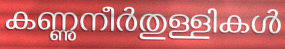
കണ്ണുനീർതുള്ളികൾ